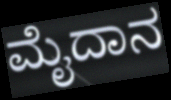
ಮೈದಾನ